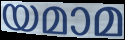
യമാമ